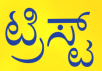
ಟ್ರಿಸ್ಟ್